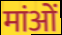
मांओं